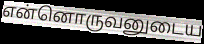
என்னொருவனுடைய